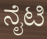
ನೈಟಿ